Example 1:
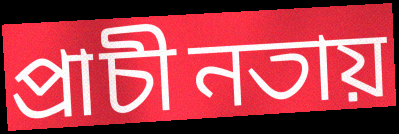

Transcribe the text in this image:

প্রাচীনতায়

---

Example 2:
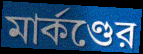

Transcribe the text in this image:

মার্কণ্ডের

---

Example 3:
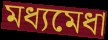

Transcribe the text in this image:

মধ্যমেধা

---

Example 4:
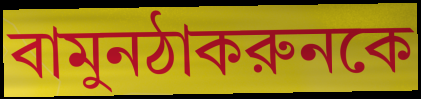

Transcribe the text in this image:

বামুনঠাকরুনকে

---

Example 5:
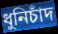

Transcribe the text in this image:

ধুনিচাঁদ